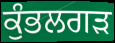
ਕੁੰਭਲਗੜ